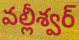
వల్లీశ్వర్